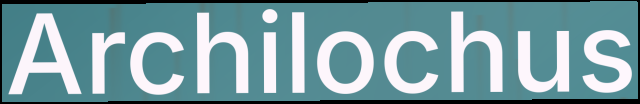
Archilochus